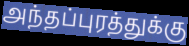
அந்தப்புரத்துக்கு